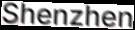
Shenzhen